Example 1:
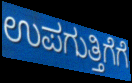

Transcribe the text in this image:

ಉಪಗುತ್ತಿಗೆಗೆ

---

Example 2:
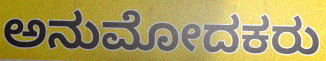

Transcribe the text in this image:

ಅನುಮೋದಕರು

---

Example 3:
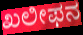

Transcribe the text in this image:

ಖಲೀಫನ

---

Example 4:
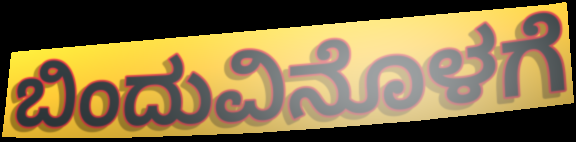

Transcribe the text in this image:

ಬಿಂದುವಿನೊಳಗೆ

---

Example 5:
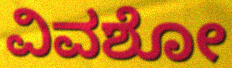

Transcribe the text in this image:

ವಿವಶೋ